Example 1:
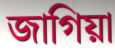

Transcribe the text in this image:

জাগিয়া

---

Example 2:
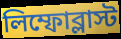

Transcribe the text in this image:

লিম্ফোব্লাস্ট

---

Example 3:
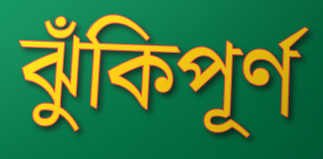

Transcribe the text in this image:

ঝুঁকিপূর্ণ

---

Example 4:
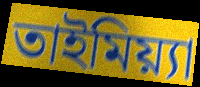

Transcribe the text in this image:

তাইমিয়্যা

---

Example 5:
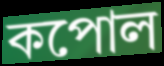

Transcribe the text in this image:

কপোল